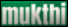
mukthi